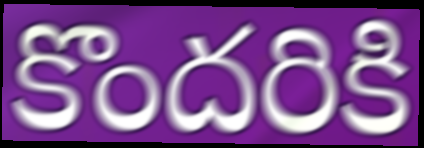
కొందరికి